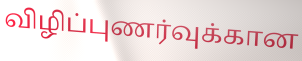
விழிப்புணர்வுக்கான